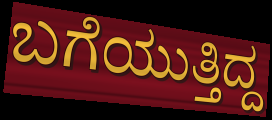
ಬಗೆಯುತ್ತಿದ್ದ